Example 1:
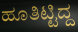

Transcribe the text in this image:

ಹೂತಿಟ್ಟಿದ್ದ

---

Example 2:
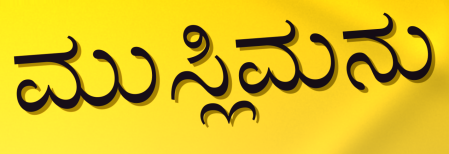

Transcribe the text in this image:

ಮುಸ್ಲಿಮನು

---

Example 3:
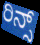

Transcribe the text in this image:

ರಿನ್ಸ್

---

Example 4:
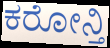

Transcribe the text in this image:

ಕರೋನ್ತಿ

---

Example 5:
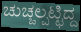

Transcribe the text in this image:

ಚುಚ್ಚಲ್ಪಟ್ಟಿದ್ದ